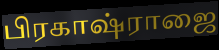
பிரகாஷ்ராஜை